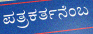
ಪತ್ರಕರ್ತನೆಂಬ